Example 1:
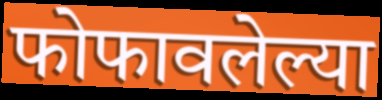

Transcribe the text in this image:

फोफावलेल्या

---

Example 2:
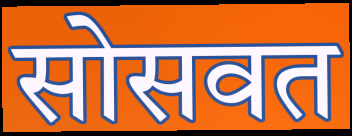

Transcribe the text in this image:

सोसवत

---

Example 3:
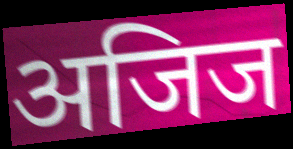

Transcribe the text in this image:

अजिज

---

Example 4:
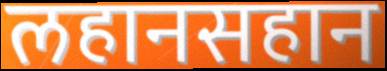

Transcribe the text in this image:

लहानसहान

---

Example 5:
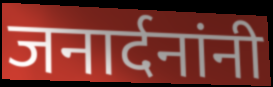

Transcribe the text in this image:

जनार्दनांनी